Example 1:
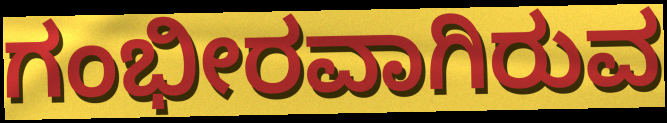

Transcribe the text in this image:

ಗಂಭೀರವಾಗಿರುವ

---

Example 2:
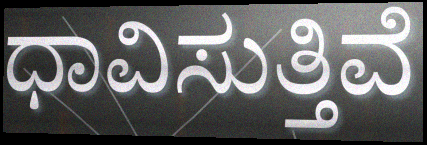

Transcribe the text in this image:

ಧಾವಿಸುತ್ತಿವೆ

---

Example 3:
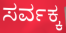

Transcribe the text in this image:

ಸರ್ವಕ್ಕ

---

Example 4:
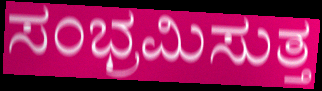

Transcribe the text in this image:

ಸಂಭ್ರಮಿಸುತ್ತ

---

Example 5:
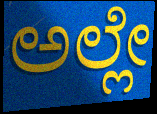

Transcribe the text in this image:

ಅಲ್ಲೇ